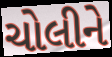
ચોલીને